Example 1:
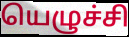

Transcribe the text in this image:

யெழுச்சி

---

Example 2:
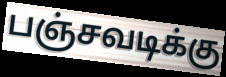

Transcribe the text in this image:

பஞ்சவடிக்கு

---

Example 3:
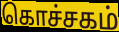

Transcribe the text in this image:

கொச்சகம்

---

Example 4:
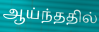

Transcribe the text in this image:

ஆய்ந்ததில்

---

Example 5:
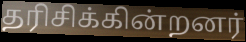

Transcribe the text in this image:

தரிசிக்கின்றனர்